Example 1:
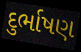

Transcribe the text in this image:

દુર્ભાષણ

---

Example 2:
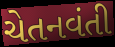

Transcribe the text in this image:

ચેતનવંતી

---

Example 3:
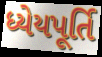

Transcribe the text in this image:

ધ્યેયપૂર્તિ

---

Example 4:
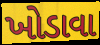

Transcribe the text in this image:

ખોડાવા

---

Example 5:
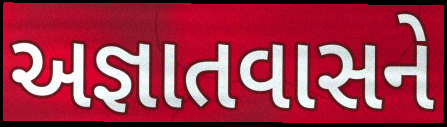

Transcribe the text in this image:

અજ્ઞાતવાસને